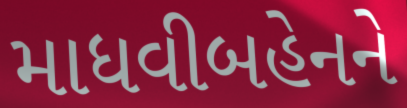
માધવીબહેનને